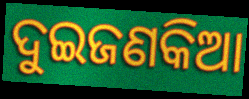
ଦୁଇଜଣକିଆ